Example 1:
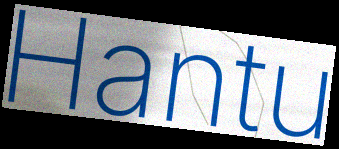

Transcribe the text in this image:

Hantu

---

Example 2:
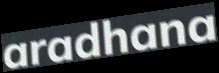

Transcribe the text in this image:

aradhana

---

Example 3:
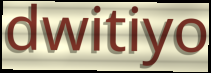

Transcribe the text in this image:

dwitiyo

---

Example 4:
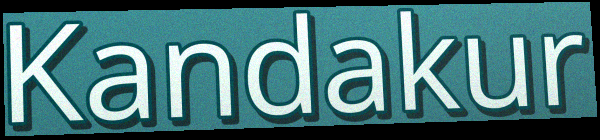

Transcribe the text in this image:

Kandakur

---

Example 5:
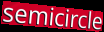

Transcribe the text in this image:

semicircle